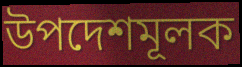
উপদেশমূলক